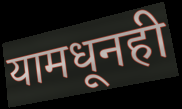
यामधूनही